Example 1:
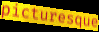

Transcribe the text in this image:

picturesque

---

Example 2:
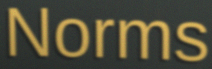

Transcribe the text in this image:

Norms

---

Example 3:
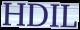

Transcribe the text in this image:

HDIL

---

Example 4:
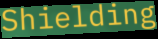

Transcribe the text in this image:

Shielding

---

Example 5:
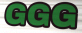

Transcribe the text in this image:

GGG